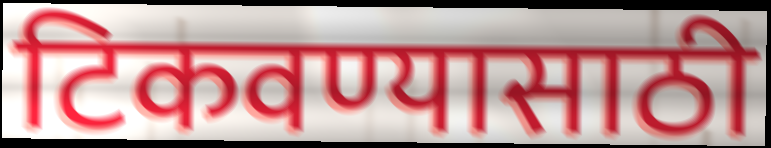
टिकवण्यासाठी